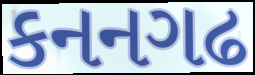
કનનગઢ